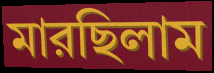
মারছিলাম